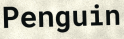
Penguin